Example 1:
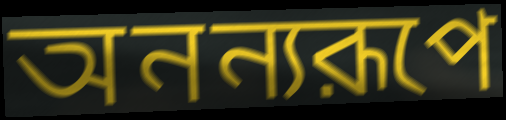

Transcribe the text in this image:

অনন্যরূপে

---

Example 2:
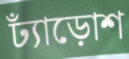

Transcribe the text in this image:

ঢ্যাঁড়োশ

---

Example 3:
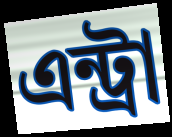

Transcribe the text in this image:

এন্ট্রা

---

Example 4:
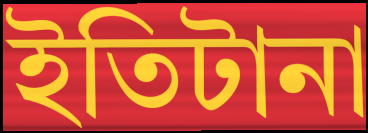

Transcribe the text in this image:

ইতিটানা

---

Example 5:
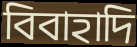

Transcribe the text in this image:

বিবাহাদি